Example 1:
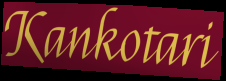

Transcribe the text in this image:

Kankotari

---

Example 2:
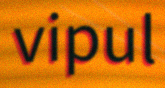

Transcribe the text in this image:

vipul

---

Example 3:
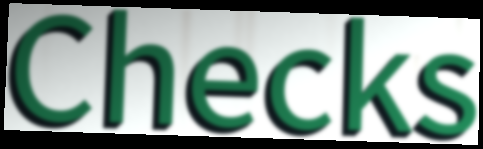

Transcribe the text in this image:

Checks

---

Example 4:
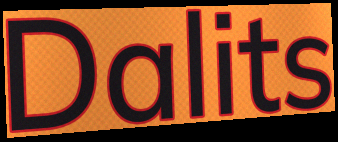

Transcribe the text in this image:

Dalits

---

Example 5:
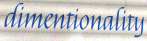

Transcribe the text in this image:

dimentionality